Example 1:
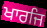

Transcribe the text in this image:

ਖਾਰਜਿ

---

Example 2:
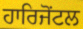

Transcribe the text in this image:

ਹਾਰਿਜੋਂਟਲ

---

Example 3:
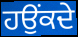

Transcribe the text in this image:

ਹਉਂਕਦੇ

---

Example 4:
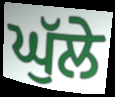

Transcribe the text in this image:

ਘੁੱਲੇ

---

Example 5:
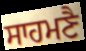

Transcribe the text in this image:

ਸਾਹਮਣੈ